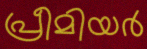
പ്രീമിയർ